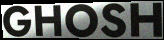
GHOSH